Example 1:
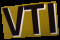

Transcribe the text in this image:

VTI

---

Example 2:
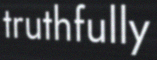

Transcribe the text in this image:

truthfully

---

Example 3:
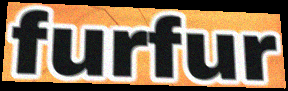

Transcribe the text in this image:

furfur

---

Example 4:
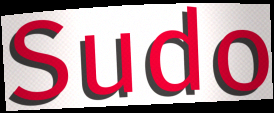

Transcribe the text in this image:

Sudo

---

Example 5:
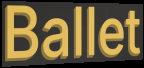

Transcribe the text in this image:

Ballet